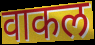
वाकल